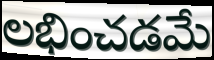
లభించడమే